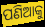
ପଣିଆକୁ